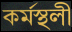
কৰ্মস্থলী